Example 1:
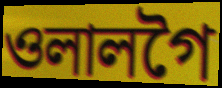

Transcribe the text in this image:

ওলালগৈ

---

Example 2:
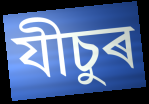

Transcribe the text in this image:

যীচুৰ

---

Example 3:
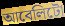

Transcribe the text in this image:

আবেলিটো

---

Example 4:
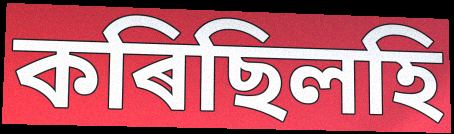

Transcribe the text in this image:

কৰিছিলহি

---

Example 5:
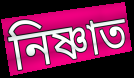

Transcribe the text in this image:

নিষ্ণাত